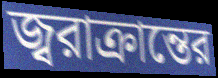
জ্বরাক্রান্তের